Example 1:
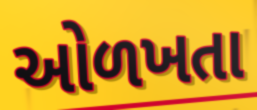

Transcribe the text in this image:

ઓળખતા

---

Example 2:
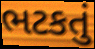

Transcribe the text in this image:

ભટકતું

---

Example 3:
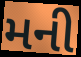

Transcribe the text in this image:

મની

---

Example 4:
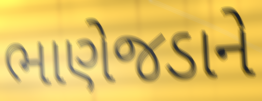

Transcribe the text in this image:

ભાણેજડાને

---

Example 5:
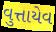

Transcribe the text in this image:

વુત્તાયેવ